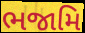
ભજામિ